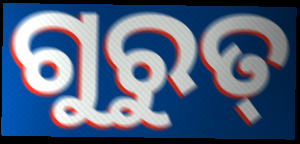
ଗୁରୁତ୍